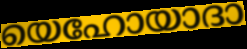
യെഹോയാദാ